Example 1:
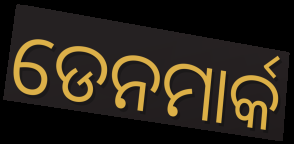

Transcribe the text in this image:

ଡେନମାର୍କ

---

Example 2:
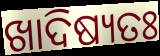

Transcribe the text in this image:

ଖାଦିଷ୍ଯତଃ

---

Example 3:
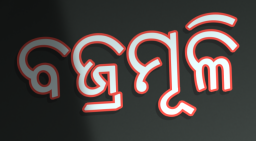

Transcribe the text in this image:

ବଜ୍ରମୂଳି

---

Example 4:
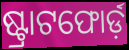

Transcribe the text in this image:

ଷ୍ଟ୍ରାଟଫୋର୍ଡ଼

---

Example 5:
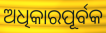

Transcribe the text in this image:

ଅଧିକାରପୂର୍ବକ